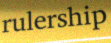
rulership